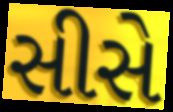
સીસે